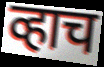
व्हाच